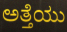
ಅತ್ತೆಯು